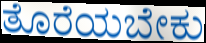
ತೊರೆಯಬೇಕು